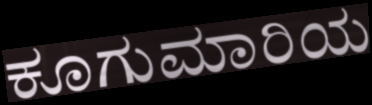
ಕೂಗುಮಾರಿಯ